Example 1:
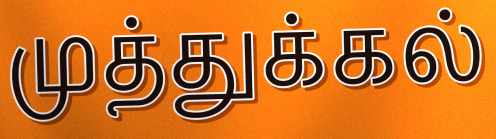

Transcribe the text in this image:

முத்துக்கல்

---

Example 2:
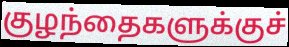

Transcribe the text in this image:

குழந்தைகளுக்குச்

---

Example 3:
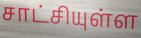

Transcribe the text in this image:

சாட்சியுள்ள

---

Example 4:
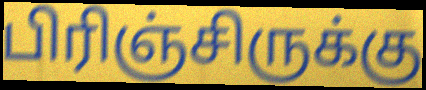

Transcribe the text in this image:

பிரிஞ்சிருக்கு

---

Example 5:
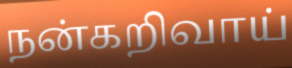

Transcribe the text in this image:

நன்கறிவாய்